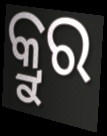
କ୍ରୁର